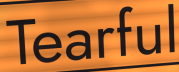
Tearful